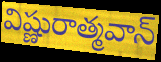
విష్ణురాత్మవాన్